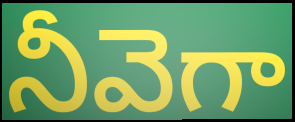
నీవెగా